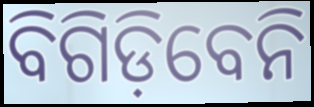
ବିଗିଡ଼ିବେନି